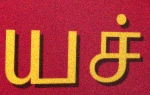
யச்